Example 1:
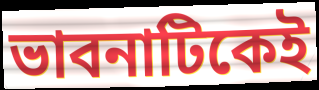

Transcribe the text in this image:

ভাবনাটিকেই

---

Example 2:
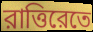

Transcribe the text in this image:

রাত্তিরেতে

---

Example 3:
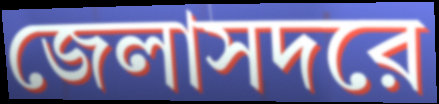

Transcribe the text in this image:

জেলাসদরে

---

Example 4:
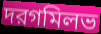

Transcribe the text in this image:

দরগমিলভ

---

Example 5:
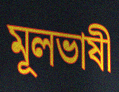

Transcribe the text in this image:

মূলভাষী